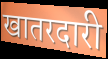
खातरदारी